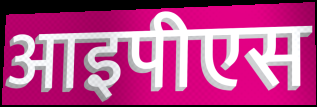
आइपीएस